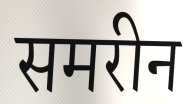
समरीन